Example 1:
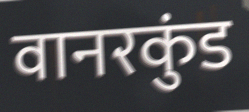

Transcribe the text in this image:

वानरकुंड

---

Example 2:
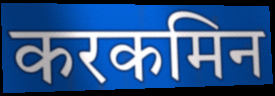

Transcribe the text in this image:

करकमिन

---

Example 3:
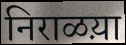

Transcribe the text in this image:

निराळय़ा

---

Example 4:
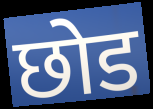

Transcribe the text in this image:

छोड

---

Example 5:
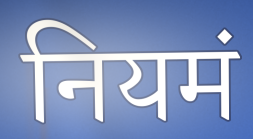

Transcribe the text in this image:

नियमं